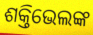
ଶକ୍ତିଭେଲଙ୍କ